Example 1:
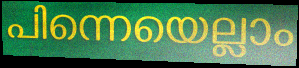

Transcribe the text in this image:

പിന്നെയെല്ലാം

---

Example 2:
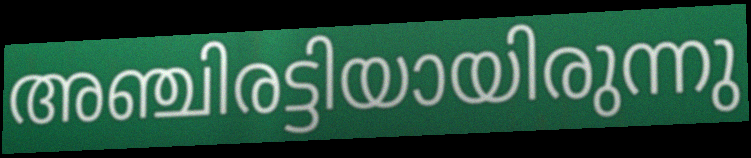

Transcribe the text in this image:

അഞ്ചിരട്ടിയായിരുന്നു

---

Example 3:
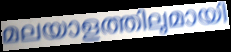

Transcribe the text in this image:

മലയാളത്തിലുമായി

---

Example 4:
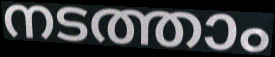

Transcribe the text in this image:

നടത്താം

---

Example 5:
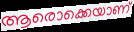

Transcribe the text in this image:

ആരൊക്കെയാണ്